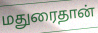
மதுரைதான்